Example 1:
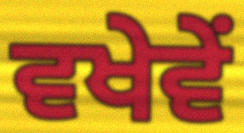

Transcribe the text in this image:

ਵਖੇਵੇਂ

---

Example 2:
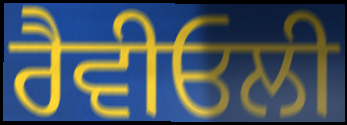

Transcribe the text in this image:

ਰੈਵੀਓਲੀ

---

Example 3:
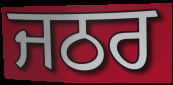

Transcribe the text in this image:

ਜਠਰ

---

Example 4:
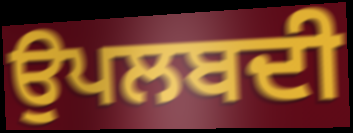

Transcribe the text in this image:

ਉਪਲਬਦੀ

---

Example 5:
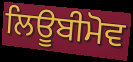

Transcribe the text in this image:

ਲਿਊਬੀਮੋਵ